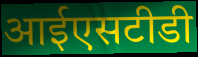
आईएसटीडी